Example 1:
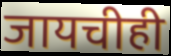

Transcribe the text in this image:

जायचीही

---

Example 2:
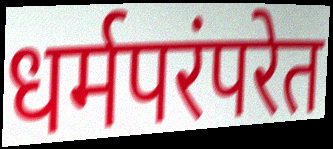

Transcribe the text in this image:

धर्मपरंपरेत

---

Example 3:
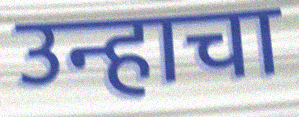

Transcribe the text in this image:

उन्हाचा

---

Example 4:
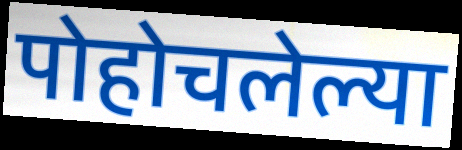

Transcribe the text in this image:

पोहोचलेल्या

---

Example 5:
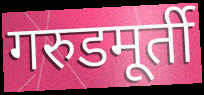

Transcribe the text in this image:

गरुडमूर्ती